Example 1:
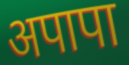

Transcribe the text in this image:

अपापा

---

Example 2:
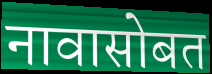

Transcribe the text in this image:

नावासोबत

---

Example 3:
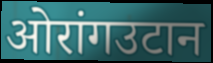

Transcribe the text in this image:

ओरांगउटान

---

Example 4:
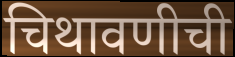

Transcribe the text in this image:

चिथावणीची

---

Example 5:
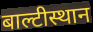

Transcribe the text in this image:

बाल्टीस्थान